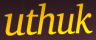
uthuk